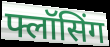
फ्लॉसिंग